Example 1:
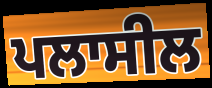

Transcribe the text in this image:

ਪਲਾਸੀਲ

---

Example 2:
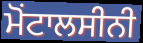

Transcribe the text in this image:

ਮੋਂਟਾਲਸੀਨੀ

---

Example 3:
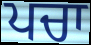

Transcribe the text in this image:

ਪਚਾ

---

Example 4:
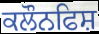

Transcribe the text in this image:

ਕਲੌਨਫਿਸ਼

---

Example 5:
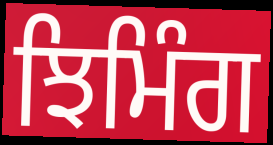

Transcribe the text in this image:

ਝਿਮਿੰਗ